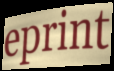
eprint